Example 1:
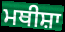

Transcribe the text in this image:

ਮਥੀਸ਼ਾ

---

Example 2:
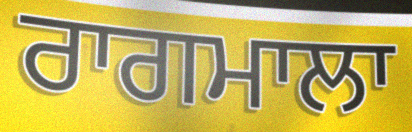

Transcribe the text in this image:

ਰਾਗਮਾਲਾ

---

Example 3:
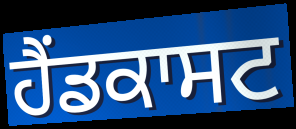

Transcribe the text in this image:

ਹੈਂਡਕਾਸਟ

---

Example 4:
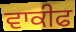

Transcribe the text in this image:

ਵਾਕੀਫ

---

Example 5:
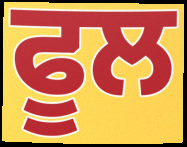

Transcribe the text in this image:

ਫੂਲ